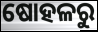
ଷୋହଳରୁ